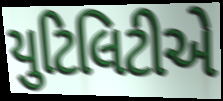
યુટિલિટીએ